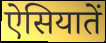
ऐसियातें